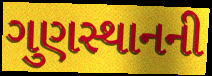
ગુણસ્થાનની